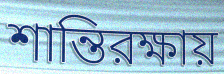
শান্তিরক্ষায়